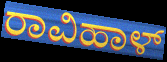
ರಾವಿಹಾಳ್